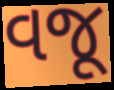
વજૂ